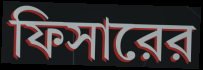
ফিসারের